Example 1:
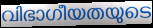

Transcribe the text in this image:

വിഭാഗീയതയുടെ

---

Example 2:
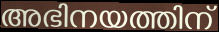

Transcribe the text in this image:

അഭിനയത്തിന്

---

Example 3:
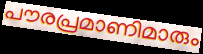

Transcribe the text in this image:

പൗരപ്രമാണിമാരും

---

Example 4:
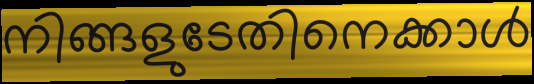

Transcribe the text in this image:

നിങ്ങളുടേതിനെക്കാൾ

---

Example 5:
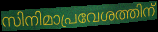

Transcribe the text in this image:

സിനിമാപ്രവേശത്തിന്